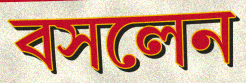
বসলেন